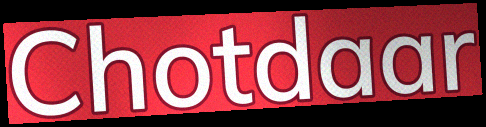
Chotdaar